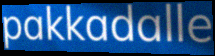
pakkadalle